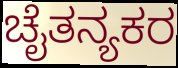
ಚೈತನ್ಯಕರ